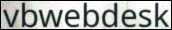
vbwebdesk